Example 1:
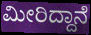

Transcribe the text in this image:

ಮೀರಿದ್ದಾನೆ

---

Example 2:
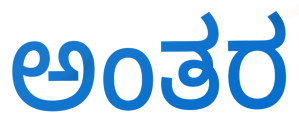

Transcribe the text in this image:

ಅಂತರ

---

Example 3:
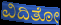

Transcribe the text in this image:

ವಿದಿತೋ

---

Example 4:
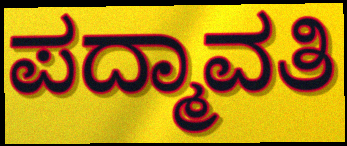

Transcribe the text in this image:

ಪದ್ಮಾವತಿ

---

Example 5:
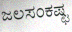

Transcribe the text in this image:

ಜಲಸಂಕಷ್ಟ